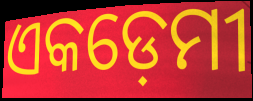
ଏକଡ଼େମୀ